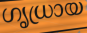
ഗൃധ്രായ